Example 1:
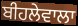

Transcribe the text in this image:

ਬੀਹਲੇਵਾਲਾ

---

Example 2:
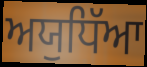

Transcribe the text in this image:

ਅਯੁਧਿੱਆ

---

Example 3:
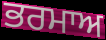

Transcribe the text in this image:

ਭਰਮਾਅ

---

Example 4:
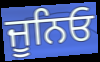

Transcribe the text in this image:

ਜੂਨਿਓ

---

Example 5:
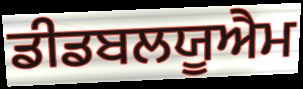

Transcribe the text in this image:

ਡੀਡਬਲਯੂਐਮ